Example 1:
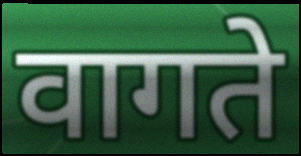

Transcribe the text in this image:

वागते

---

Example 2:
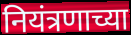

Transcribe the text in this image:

नियंत्रणाच्या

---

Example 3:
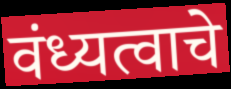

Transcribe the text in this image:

वंध्यत्वाचे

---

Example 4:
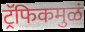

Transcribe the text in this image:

ट्रॅफिकमुळं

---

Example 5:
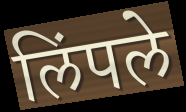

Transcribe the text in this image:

लिंपले